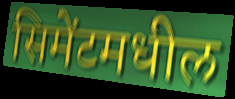
सिमेंटमधील